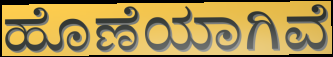
ಹೊಣೆಯಾಗಿವೆ